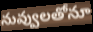
నువ్వులతోనూ